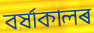
বৰ্ষাকালৰ